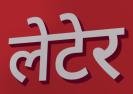
लेटेर